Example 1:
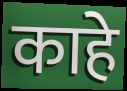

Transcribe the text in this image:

काहे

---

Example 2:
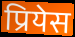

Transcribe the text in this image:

प्रियेस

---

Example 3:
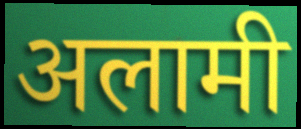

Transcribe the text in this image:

अलामी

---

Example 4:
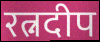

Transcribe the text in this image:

रत्नदीप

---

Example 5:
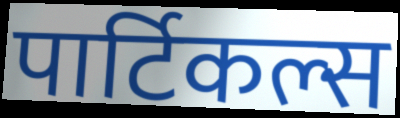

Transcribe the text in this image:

पार्टिकल्‍स